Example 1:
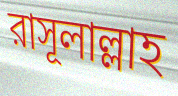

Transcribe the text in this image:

রাসূলাল্লাহ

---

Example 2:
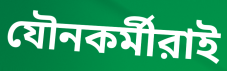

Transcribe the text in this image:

যৌনকর্মীরাই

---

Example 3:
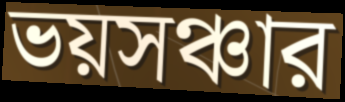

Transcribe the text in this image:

ভয়সঞ্চার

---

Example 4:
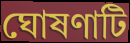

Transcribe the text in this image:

ঘোষণাটি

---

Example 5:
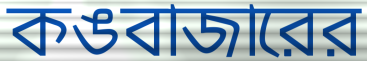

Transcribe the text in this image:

কঙবাজারের